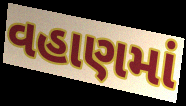
વહાણમાં